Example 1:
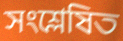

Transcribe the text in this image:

সংশ্লেষিত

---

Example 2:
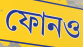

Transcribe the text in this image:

ফোনও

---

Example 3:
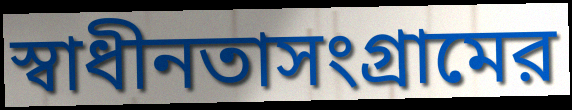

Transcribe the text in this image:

স্বাধীনতাসংগ্রামের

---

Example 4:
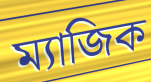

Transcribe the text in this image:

ম্যাজিক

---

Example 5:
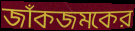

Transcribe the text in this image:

জাঁকজমকের